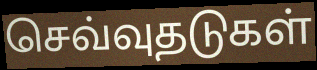
செவ்வுதடுகள்